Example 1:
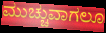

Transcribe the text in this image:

ಮುಚ್ಚುವಾಗಲೂ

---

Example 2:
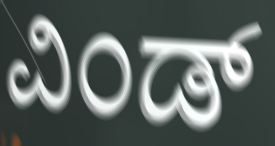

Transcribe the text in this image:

ವಿಂಡ್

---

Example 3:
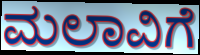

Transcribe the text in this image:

ಮಲಾವಿಗೆ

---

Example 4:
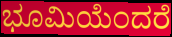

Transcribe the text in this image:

ಭೂಮಿಯೆಂದರೆ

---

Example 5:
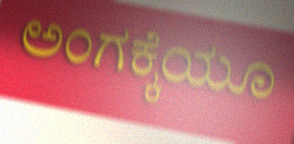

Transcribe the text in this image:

ಅಂಗಕ್ಕೆಯೂ